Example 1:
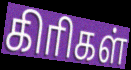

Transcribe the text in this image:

கிரிகள்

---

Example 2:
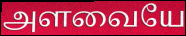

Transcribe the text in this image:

அளவையே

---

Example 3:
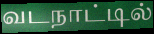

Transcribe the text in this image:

வடநாட்டில்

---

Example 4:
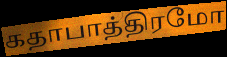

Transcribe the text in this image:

கதாபாத்திரமோ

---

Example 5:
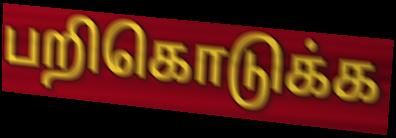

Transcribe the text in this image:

பறிகொடுக்க